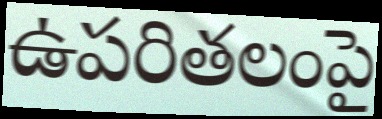
ఉపరితలంపై